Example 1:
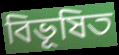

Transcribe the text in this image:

বিভূষিত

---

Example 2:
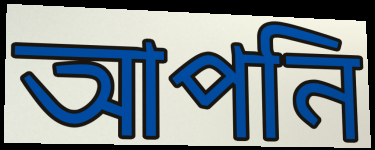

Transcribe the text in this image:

আপনি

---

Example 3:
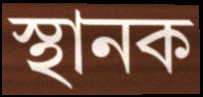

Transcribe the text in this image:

স্থানক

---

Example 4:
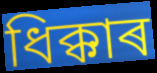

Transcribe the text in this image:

ধিক্কাৰ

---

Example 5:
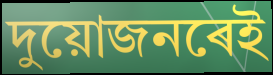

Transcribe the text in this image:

দুয়োজনৰেই